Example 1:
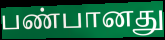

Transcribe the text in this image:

பண்பானது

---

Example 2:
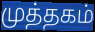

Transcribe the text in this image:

முத்தகம்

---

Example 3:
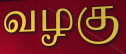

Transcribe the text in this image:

வழகு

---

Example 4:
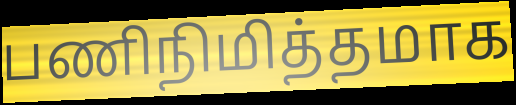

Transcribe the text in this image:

பணிநிமித்தமாக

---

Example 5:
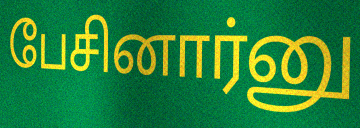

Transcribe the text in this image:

பேசினார்னு